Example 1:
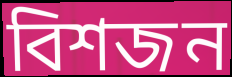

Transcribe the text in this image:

বিশজন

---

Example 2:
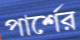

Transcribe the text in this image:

পার্শের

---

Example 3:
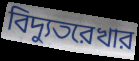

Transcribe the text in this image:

বিদ্যুতরেখার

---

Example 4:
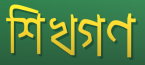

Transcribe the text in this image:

শিখগণ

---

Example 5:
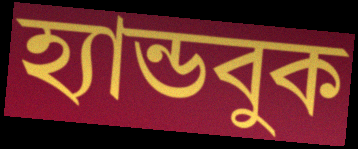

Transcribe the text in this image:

হ্যান্ডবুক